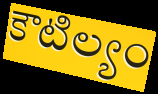
కౌటిల్యం